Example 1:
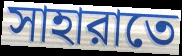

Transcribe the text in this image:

সাহারাতে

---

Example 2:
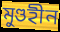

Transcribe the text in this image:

মুণ্ডহীন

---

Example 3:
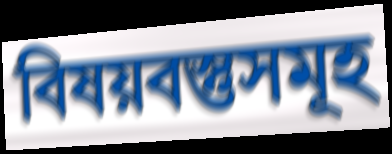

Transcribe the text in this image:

বিষয়বস্তুসমূহ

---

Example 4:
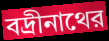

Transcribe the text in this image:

বদ্রীনাথের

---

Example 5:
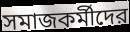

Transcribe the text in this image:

সমাজকর্মীদের